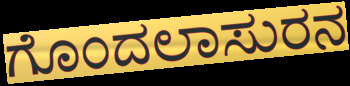
ಗೊಂದಲಾಸುರನ